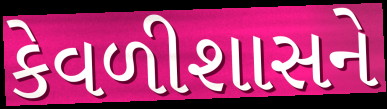
કેવળીશાસને